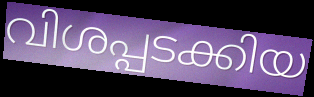
വിശപ്പടക്കിയ